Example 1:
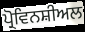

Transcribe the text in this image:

ਪ੍ਰੋਵਿਨਸ਼ੀਅਲ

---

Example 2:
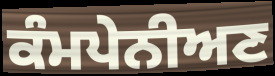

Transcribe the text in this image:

ਕੰਮਪੇਨੀਅਣ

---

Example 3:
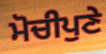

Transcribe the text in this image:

ਮੋਚੀਪੁਣੇ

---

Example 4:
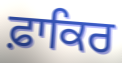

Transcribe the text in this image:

ਫ਼ਾਕਿਰ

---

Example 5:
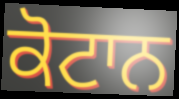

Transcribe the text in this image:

ਕੋਟਾਨ